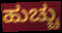
ಹುಚ್ಚು